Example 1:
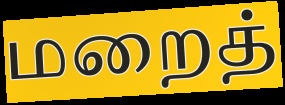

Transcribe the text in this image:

மறைத்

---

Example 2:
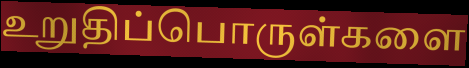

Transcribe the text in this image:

உறுதிப்பொருள்களை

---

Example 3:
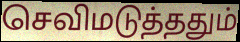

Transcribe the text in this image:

செவிமடுத்ததும்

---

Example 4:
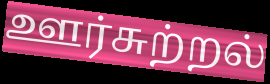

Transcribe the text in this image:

ஊர்சுற்றல்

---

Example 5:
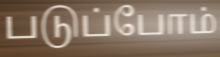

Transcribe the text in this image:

படுப்போம்